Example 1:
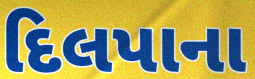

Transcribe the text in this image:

દિલપાના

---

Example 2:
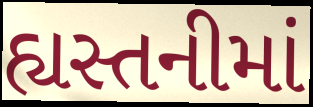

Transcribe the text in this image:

હ્યસ્તનીમાં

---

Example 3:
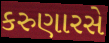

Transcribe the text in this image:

કરુણારસે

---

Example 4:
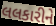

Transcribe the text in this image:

લલકારીને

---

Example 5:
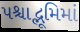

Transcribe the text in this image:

પશ્ચાદ્ભૂમિમાં